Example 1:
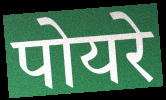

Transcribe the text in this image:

पोयरे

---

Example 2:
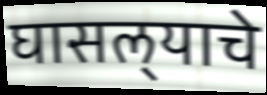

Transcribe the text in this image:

घासल्याचे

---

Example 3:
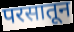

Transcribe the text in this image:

परसातून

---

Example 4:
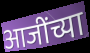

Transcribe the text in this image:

आजींच्या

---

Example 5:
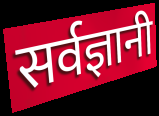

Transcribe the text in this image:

सर्वज्ञानी